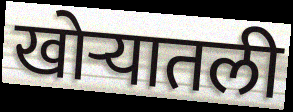
खोऱ्यातली